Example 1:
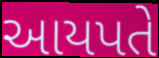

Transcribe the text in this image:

આયપતે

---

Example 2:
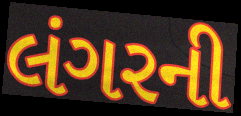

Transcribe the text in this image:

લંગરની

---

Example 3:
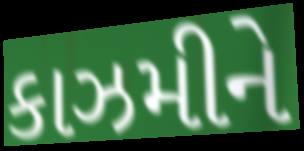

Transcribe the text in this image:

કાઝમીને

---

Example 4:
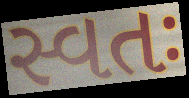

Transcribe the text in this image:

સ્વતઃ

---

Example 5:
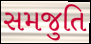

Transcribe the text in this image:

સમજુતિ